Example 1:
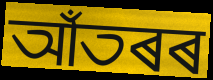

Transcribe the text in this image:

আঁতৰৰ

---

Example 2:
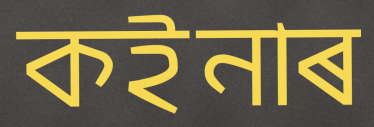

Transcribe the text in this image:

কইনাৰ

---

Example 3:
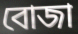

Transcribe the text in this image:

বোজা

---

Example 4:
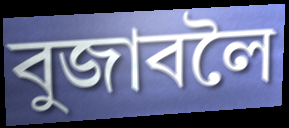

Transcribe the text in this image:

বুজাবলৈ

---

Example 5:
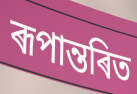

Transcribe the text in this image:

ৰূপান্তৰিত